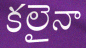
కలైనా